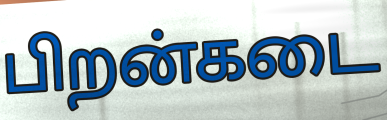
பிறன்கடை